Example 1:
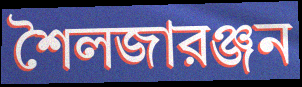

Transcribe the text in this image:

শৈলজারঞ্জন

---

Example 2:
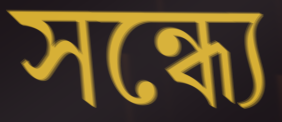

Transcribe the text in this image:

সন্ধ্যে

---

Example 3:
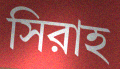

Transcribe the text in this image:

সিরাহ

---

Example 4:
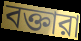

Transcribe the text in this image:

বক্তারা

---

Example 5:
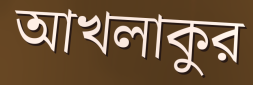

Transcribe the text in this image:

আখলাকুর